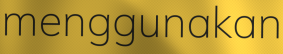
menggunakan